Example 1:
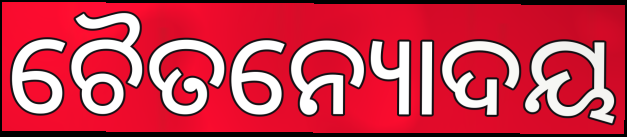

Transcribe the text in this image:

ଚୈତନ୍ୟୋଦୟ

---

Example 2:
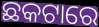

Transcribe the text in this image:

ଛକଟାରେ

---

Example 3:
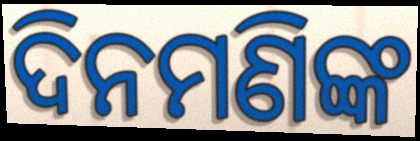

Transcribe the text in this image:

ଦିନମଣିଙ୍କ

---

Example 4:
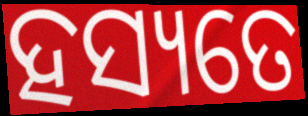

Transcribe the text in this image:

ହସ୍ୟତେ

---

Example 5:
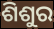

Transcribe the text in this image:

ଶିଶୁର